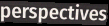
perspectives